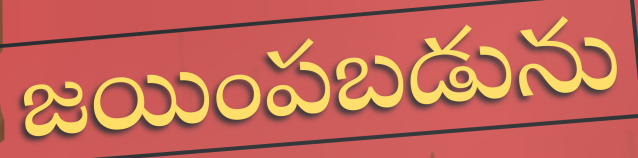
జయింపబడును